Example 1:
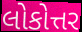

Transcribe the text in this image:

લોકોત્તર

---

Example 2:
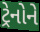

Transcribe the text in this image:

ટ્રેનોને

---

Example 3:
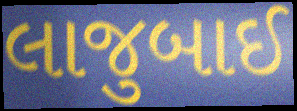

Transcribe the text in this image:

લાજુબાઈ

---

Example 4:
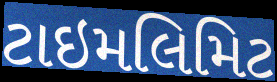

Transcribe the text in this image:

ટાઇમલિમિટ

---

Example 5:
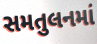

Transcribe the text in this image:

સમતુલનમાં